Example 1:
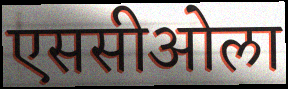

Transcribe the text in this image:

एससीओला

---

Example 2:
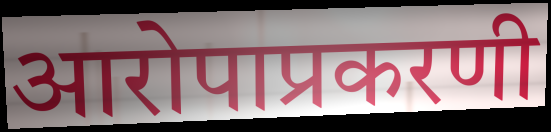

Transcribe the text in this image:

आरोपाप्रकरणी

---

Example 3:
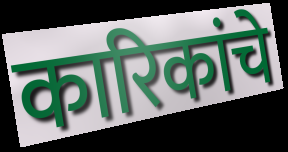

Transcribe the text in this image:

कारिकांचे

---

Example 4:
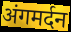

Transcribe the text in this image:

अंगमर्दन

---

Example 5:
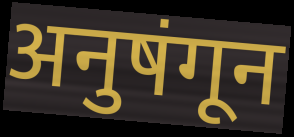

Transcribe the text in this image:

अनुषंगून